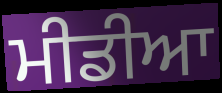
ਮੀਡੀਆ